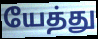
யேத்து